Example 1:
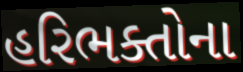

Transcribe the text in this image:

હરિભક્તોના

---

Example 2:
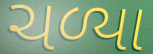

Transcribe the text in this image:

ચળ્યા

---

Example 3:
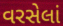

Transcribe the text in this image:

વરસેલાં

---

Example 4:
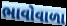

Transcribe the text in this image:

ભાવોવાળા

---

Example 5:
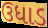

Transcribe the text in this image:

ઉધાડ